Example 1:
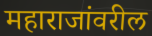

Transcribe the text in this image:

महाराजांवरील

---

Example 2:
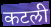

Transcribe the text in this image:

कटली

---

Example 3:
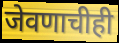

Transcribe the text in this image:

जेवणाचीही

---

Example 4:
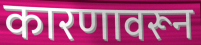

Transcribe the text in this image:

कारणावरून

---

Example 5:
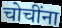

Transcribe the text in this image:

चोचींना